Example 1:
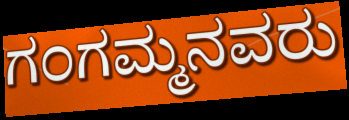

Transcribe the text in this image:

ಗಂಗಮ್ಮನವರು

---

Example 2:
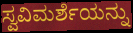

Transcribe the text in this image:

ಸ್ವವಿಮರ್ಶೆಯನ್ನು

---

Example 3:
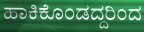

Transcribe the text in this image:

ಹಾಕಿಕೊಂಡದ್ದರಿಂದ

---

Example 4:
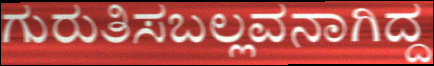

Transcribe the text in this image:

ಗುರುತಿಸಬಲ್ಲವನಾಗಿದ್ದ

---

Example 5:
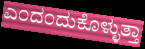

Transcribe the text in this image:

ಎಂದಂದುಕೊಳ್ಳುತ್ತಾ